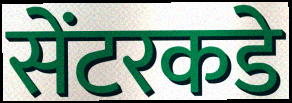
सेंटरकडे